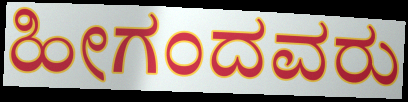
ಹೀಗಂದವರು